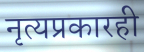
नृत्यप्रकारही